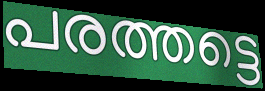
പരത്തട്ടെ